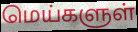
மெய்களுள்